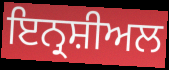
ਇਨ੍ਰਸ਼ੀਅਲ